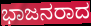
ಭಾಜನರಾದ